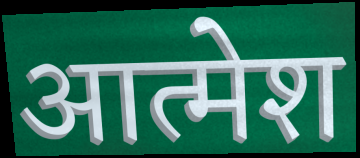
आत्मेश